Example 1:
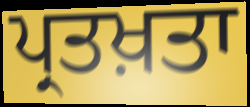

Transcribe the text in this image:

ਪ੍ਰਤਖ਼ਤਾ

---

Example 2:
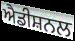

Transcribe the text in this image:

ਐਡੀਸ਼ਨਲ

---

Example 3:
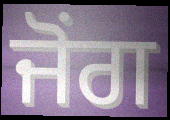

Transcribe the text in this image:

ਜੋਂਗ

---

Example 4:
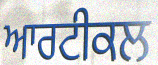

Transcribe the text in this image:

ਆਰਟੀਕਲ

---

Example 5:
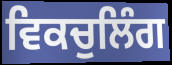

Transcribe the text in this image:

ਵਿਕਚੁਲਿੰਗ